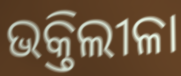
ଭକ୍ତିଲୀଳା